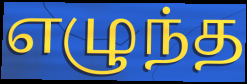
எழுந்த